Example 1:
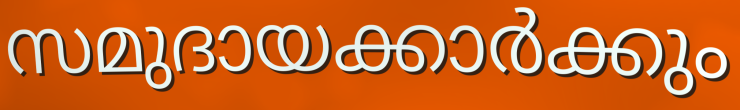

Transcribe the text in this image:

സമുദായക്കാർക്കും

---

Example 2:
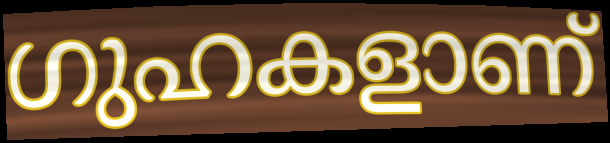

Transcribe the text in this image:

ഗുഹകളാണ്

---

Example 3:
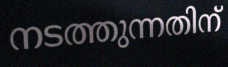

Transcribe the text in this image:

നടത്തുന്നതിന്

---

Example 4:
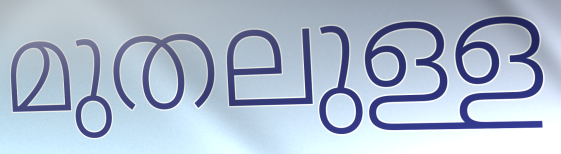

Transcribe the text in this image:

മുതലുള്ള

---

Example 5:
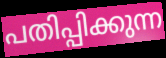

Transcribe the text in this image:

പതിപ്പിക്കുന്ന